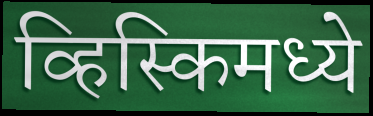
व्हिस्किमध्ये